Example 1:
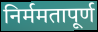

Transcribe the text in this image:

निर्ममतापूर्ण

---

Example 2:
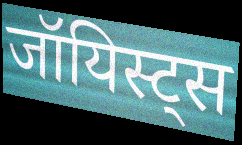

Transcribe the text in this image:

जॉयिस्ट्स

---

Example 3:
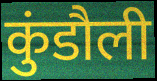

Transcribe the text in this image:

कुंडौली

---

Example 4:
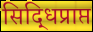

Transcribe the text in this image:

सिद्धिप्राप्त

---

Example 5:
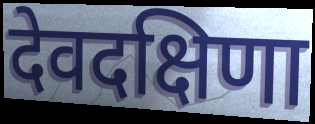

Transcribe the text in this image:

देवदक्षिणा